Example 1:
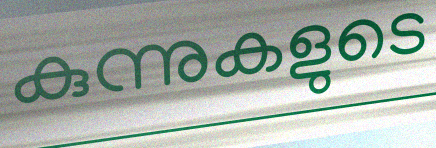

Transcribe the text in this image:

കുന്നുകളുടെ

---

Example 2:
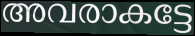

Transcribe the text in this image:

അവരാകട്ടേ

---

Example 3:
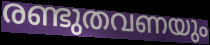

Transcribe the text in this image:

രണ്ടുതവണയും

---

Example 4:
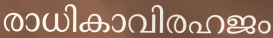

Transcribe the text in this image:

രാധികാവിരഹജം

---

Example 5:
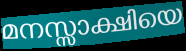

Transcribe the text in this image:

മനസ്സാക്ഷിയെ